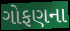
ગોફણના